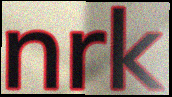
nrk